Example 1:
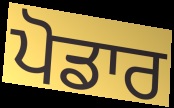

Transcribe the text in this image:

ਪੋਡਾਰ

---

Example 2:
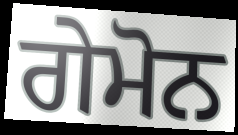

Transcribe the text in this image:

ਗੇਮੋਨ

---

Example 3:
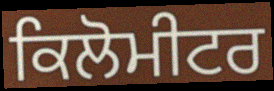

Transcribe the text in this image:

ਕਿਲੋਮੀਟਰ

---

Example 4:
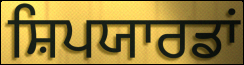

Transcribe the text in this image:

ਸ਼ਿਪਯਾਰਡਾਂ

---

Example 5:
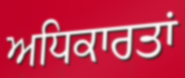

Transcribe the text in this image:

ਅਧਿਕਾਰਤਾਂ